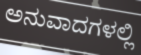
ಅನುವಾದಗಳಲ್ಲಿ